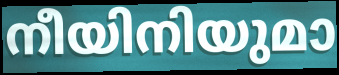
നീയിനിയുമാ